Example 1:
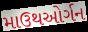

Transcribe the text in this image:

માઉથઓર્ગન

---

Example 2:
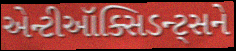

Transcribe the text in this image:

એન્ટીઑક્સિડન્ટ્સને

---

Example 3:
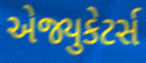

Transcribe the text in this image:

એજ્યુકેટર્સ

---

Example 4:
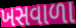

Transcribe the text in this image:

ખસવાળા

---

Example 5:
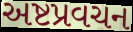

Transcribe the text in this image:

અષ્ટપ્રવચન